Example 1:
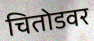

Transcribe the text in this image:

चितोडवर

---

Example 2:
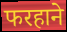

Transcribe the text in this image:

फरहाने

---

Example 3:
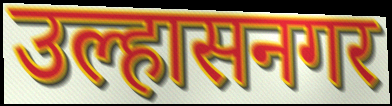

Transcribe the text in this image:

उल्हासनगर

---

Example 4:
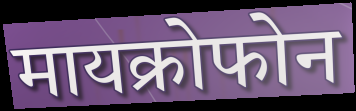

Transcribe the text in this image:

मायक्रोफोन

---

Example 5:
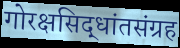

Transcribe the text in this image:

गोरक्षसिद्धांतसंग्रह